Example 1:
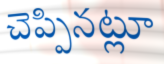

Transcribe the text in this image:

చెప్పినట్లూ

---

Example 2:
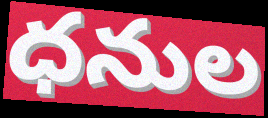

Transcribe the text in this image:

ధనుల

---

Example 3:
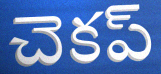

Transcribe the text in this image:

చెకప్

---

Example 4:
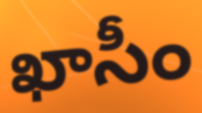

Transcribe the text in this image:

ఖాసీం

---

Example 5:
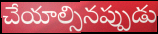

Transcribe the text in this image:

చేయాల్సినప్పుడు